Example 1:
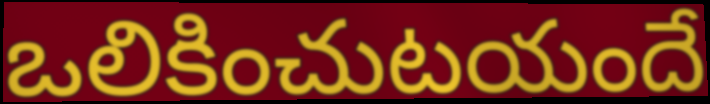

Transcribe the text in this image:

ఒలికించుటయందే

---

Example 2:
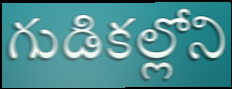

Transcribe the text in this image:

గుడికల్లోని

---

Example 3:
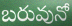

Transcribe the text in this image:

బరువునో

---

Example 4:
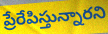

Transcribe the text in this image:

ప్రేరేపిస్తున్నారని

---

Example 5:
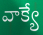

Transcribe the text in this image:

వాక్యే